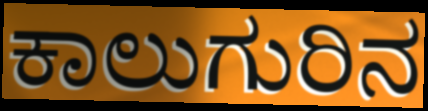
ಕಾಲುಗುರಿನ